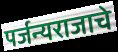
पर्जन्यराजाचे